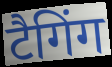
टैगिंग